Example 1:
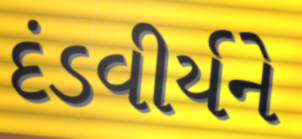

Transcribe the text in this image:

દંડવીર્યને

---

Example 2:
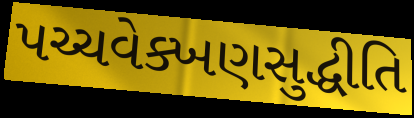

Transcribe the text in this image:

પચ્ચવેક્ખણસુદ્ધીતિ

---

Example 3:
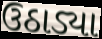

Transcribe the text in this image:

ઉઠાડ્યા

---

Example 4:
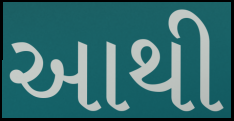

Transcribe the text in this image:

આથી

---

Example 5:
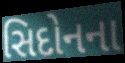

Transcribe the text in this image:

સિદોનના